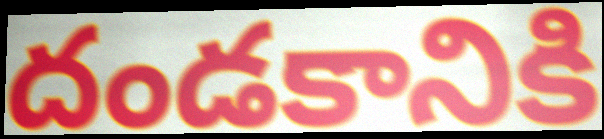
దండకానికి